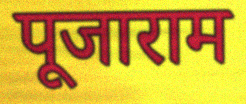
पूजाराम